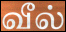
வீல்